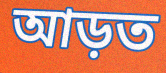
আড়ত